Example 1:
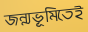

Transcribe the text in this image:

জন্মভূমিতেই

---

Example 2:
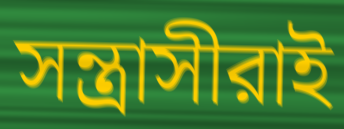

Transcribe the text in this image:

সন্ত্রাসীরাই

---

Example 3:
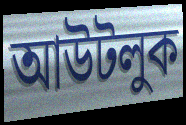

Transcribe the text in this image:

আউটলুক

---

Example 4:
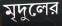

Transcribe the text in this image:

মৃদুলের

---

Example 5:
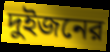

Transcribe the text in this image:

দুইজনের